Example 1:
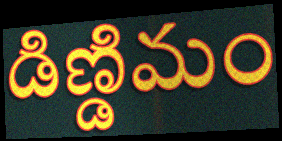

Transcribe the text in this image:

డిణ్డిమం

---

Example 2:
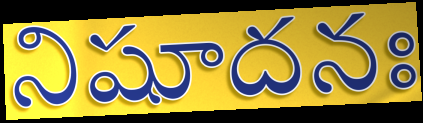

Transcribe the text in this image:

నిషూదనః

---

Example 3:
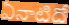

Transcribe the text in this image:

ఏనాటిదో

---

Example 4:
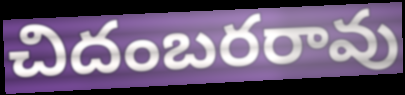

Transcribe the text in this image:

చిదంబరరావు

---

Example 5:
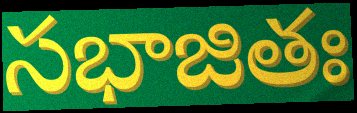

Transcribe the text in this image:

సభాజితః